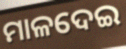
ମାଳଦେଇ